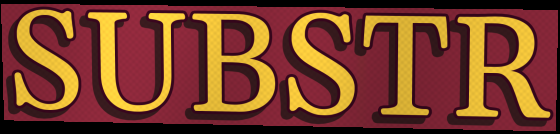
SUBSTR